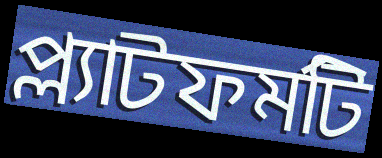
প্ল্যাটফর্মটি